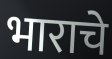
भाराचे